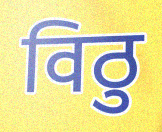
विठु